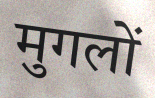
मुगलों